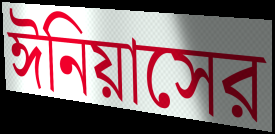
ঈনিয়াসের